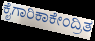
ಕೈಗಾರಿಕಾಕೇಂದ್ರಿತ